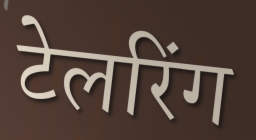
टेलरिंग